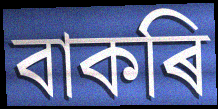
বাকৰি